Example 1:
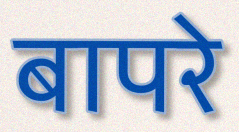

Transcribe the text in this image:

बापरे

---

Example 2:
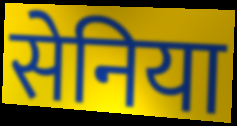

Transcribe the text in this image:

सेनिया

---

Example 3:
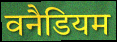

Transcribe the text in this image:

वनैडियम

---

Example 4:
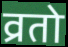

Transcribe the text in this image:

व्रतो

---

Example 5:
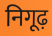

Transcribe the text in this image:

निगूढ़